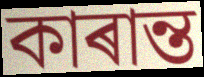
কাৰান্ত